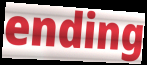
ending